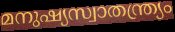
മനുഷ്യസ്വാതന്ത്ര്യം